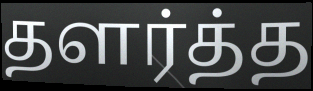
தளர்த்த